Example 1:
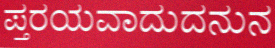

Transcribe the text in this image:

ಪ್ತರಯವಾದುದನುನ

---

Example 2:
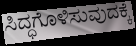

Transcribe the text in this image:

ಸಿದ್ಧಗೊಳಿಸುವುದಕ್ಕೆ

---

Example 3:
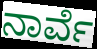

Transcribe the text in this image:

ನಾರ್ವೆ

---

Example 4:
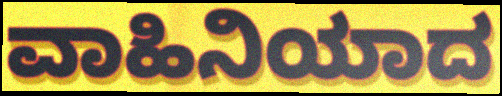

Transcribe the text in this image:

ವಾಹಿನಿಯಾದ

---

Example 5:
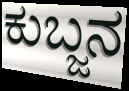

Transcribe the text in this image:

ಕುಬ್ಜನ